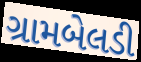
ગ્રામબેલડી